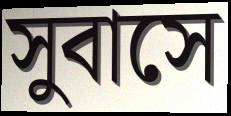
সুবাসে